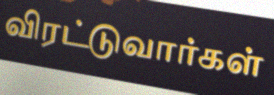
விரட்டுவார்கள்